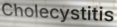
Cholecystitis